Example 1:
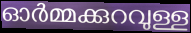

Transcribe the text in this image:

ഓർമ്മക്കുറവുള്ള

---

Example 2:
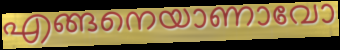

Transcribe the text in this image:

എങ്ങനെയാണാവോ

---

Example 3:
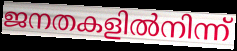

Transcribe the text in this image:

ജനതകളിൽനിന്ന്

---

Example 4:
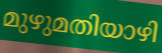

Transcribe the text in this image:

മുഴുമതിയാഴി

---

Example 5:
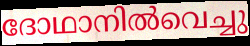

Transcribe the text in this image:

ദോഥാനിൽവെച്ചു